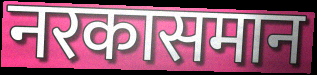
नरकासमान